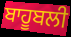
ਬਾਹੂਬਲੀ